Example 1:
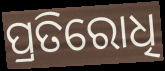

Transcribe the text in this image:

ପ୍ରତିରୋଧି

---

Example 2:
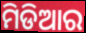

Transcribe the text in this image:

ମିଡିଆର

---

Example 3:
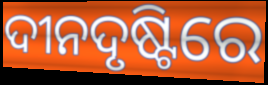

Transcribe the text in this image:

ଦୀନଦୃଷ୍ଟିରେ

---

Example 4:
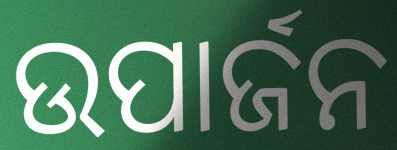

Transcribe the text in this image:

ଉପାର୍ଜନ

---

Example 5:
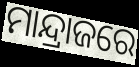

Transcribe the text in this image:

ମାନ୍ଦ୍ରାଜରେ